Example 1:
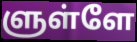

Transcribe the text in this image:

ளுள்ளே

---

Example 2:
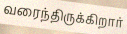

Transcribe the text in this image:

வரைந்திருக்கிறார்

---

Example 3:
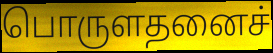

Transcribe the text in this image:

பொருளதனைச்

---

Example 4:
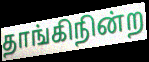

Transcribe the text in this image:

தாங்கிநின்ற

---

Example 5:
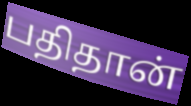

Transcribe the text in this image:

பதிதான்